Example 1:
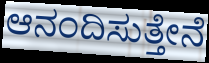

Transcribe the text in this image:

ಆನಂದಿಸುತ್ತೇನೆ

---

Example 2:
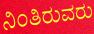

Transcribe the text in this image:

ನಿಂತಿರುವರು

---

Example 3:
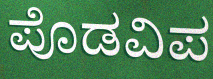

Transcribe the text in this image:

ಪೊಡವಿಪ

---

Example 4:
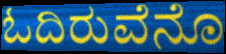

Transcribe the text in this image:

ಓದಿರುವೆನೊ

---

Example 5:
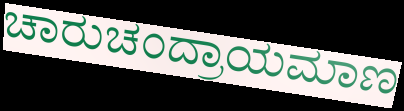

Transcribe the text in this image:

ಚಾರುಚಂದ್ರಾಯಮಾಣ